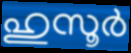
ഹുസൂർ